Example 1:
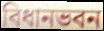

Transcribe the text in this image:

বিধানভবন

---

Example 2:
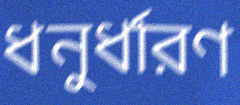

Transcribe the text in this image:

ধনুর্ধারণ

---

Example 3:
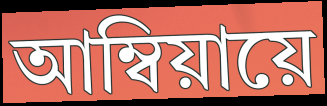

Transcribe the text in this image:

আম্বিয়ায়ে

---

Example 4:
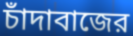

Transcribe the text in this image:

চাঁদাবাজের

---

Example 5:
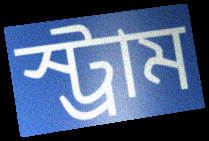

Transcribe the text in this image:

স্ট্রাম